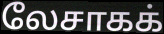
லேசாகக்